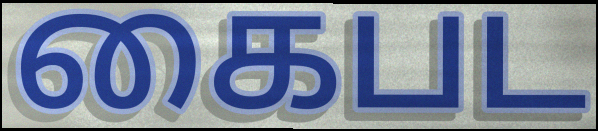
கைபட